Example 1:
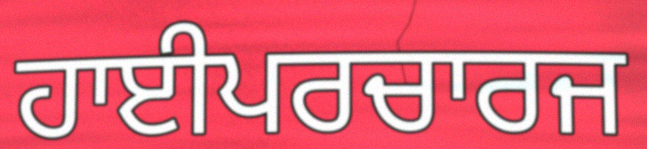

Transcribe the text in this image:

ਹਾਈਪਰਚਾਰਜ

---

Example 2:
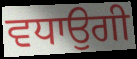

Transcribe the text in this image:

ਵਧਾਉਗੀ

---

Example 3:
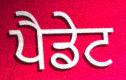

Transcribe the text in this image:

ਪੈਡੇਟ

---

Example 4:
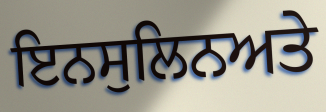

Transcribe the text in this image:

ਇਨਸੁਲਿਨਅਤੇ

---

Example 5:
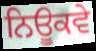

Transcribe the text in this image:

ਨਿਊਕਵੇ